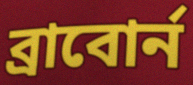
ব্রাবোর্ন